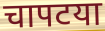
चापटया